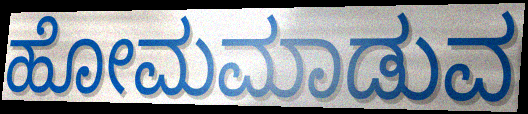
ಹೋಮಮಾಡುವ